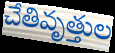
చేతివృత్తుల